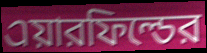
এয়ারফিল্ডের